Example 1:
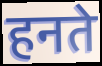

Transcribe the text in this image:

हनते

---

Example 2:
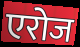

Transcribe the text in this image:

एरोज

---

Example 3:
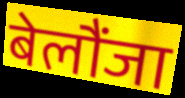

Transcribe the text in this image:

बेलौंजा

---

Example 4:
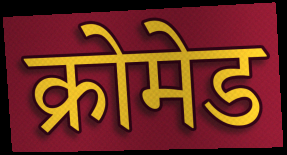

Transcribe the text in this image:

क्रोमेड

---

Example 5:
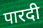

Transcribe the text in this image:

पारदी